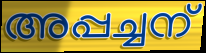
അപ്പച്ചന്